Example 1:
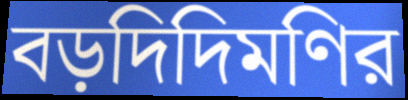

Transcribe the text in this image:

বড়দিদিমণির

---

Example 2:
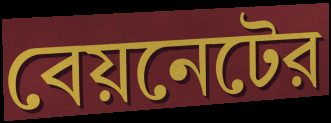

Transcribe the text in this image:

বেয়নেটের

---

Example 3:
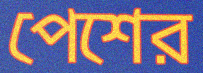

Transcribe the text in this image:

পেশের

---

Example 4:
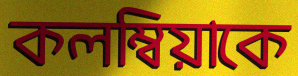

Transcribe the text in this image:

কলম্বিয়াকে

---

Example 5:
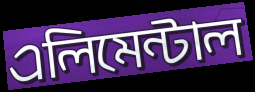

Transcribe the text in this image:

এলিমেন্টাল